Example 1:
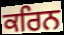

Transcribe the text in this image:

ਕਰਿਨ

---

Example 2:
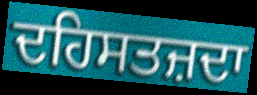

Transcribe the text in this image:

ਦਹਿਸਤਜ਼ਦਾ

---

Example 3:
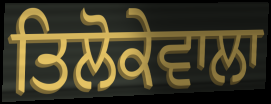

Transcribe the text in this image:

ਤਿਲੋਕੇਵਾਲਾ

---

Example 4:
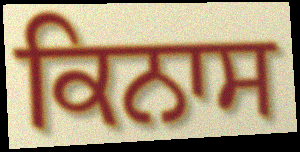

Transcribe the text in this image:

ਕਿਨਾਸ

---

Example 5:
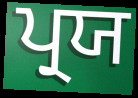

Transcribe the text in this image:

ਪ੍ਰਯ